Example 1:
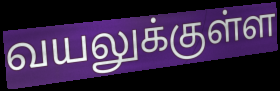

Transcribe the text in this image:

வயலுக்குள்ள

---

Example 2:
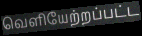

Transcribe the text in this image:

வெளியேற்றப்பட்ட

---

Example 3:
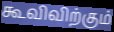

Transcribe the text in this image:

கூவிவிற்கும்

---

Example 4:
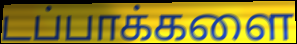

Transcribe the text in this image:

டப்பாக்களை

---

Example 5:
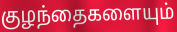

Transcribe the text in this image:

குழந்தைகளையும்